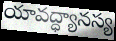
యావద్ధ్యానస్య